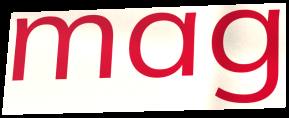
mag